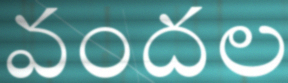
వందల